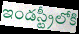
ఇండస్ట్రీలోకి